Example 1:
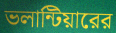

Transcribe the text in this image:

ভলান্টিয়ারের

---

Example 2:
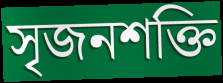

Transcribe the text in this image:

সৃজনশক্তি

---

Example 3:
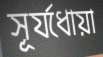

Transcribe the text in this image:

সূর্যধোয়া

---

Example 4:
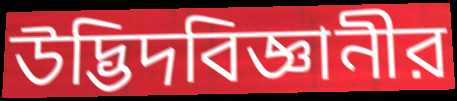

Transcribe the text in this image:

উদ্ভিদবিজ্ঞানীর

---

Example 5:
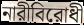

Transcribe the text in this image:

নারীবিরোধী